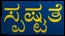
ಸ್ಪಷ್ಟತೆ